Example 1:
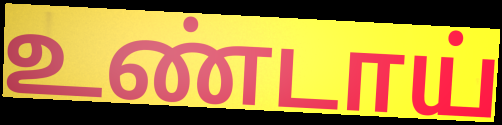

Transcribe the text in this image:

உண்டாய்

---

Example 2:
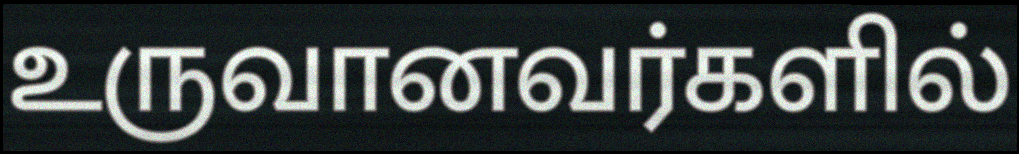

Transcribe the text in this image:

உருவானவர்களில்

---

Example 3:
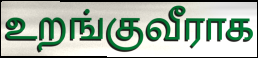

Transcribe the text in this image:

உறங்குவீராக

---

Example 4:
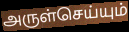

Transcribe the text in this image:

அருள்செய்யும்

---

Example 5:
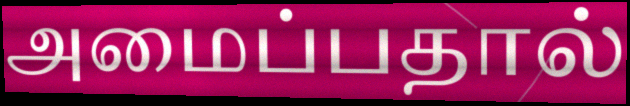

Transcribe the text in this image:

அமைப்பதால்